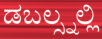
ಡಬಲ್ಸ್ನಲ್ಲಿ